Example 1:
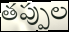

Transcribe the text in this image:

తప్పుల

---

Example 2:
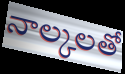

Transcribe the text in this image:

నాల్కలతో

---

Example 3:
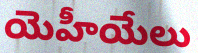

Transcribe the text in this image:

యెహీయేలు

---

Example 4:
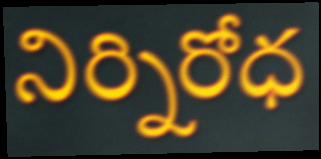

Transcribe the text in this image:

నిర్నిరోధ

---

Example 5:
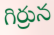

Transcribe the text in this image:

గిర్రున